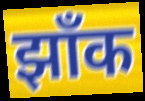
झाँक